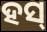
ହସ୍